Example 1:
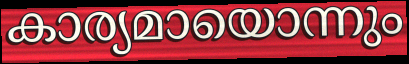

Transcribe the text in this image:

കാര്യമായൊന്നും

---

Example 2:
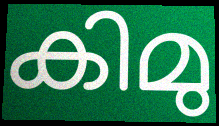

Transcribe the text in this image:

കിമു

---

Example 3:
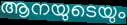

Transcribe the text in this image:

ആനയുടെയും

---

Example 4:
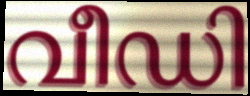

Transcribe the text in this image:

വീഡി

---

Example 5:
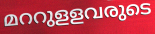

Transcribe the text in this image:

മററുളളവരുടെ